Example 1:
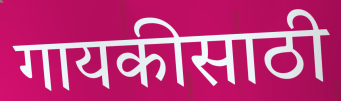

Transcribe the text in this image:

गायकीसाठी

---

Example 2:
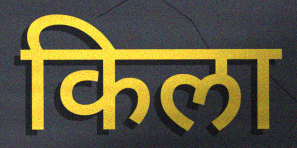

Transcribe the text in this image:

किला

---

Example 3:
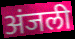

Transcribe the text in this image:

अंजली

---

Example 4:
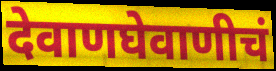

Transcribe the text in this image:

देवाणघेवाणीचं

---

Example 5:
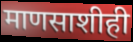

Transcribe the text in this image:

माणसाशीही